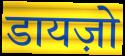
डायज़ो